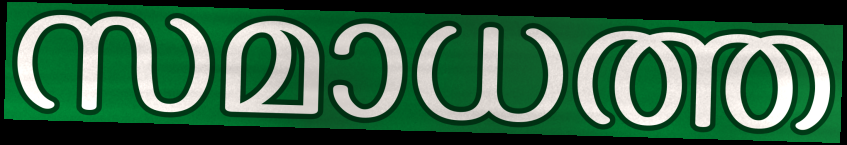
സമാധത്ത